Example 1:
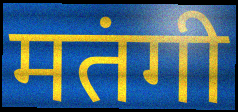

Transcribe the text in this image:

मतंगी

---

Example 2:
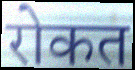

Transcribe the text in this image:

रोकत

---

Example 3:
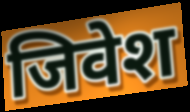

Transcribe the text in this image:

जिवेश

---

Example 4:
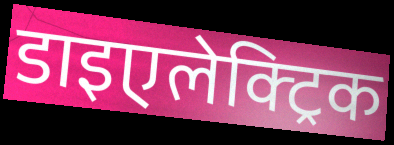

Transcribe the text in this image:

डाइएलेक्ट्रिक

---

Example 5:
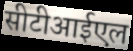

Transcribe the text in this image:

सीटीआईएल